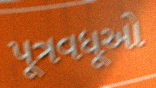
પૂત્રવધૂઓ